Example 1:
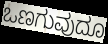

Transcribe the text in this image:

ಒಣಗುವುದೂ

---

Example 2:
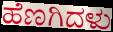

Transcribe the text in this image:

ಹೆಣಗಿದಳು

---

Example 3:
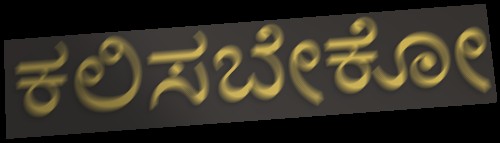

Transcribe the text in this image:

ಕಲಿಸಬೇಕೋ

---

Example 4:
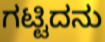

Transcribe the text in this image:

ಗಟ್ಟಿದನು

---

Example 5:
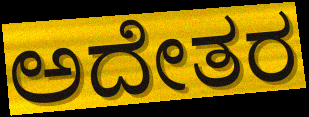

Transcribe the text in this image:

ಅದೇತರ